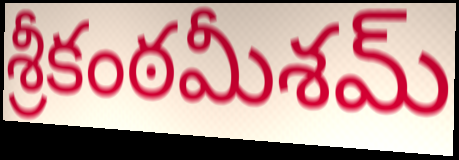
శ్రీకంఠమీశమ్